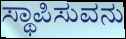
ಸ್ಥಾಪಿಸುವನು